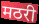
मठरी